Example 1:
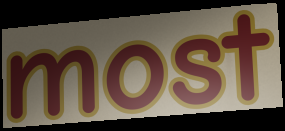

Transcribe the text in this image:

most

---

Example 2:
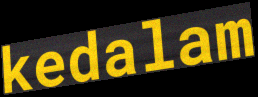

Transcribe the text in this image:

kedalam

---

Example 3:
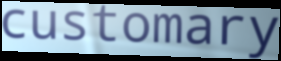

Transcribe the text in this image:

customary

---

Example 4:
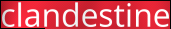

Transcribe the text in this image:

clandestine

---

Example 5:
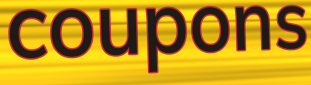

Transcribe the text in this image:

coupons